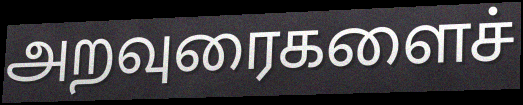
அறவுரைகளைச்